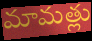
మామత్లు